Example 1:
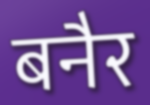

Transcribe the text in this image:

बनैर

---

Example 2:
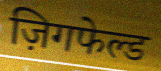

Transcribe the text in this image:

ज़िगफेल्ड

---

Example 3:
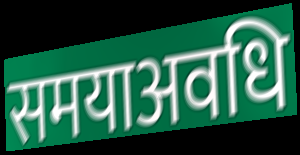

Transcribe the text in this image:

समयाअवधि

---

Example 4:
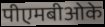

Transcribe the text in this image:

पीएमबीओके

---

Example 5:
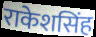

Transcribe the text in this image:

राकेशसिंह